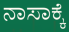
ನಾಸಾಕ್ಕೆ